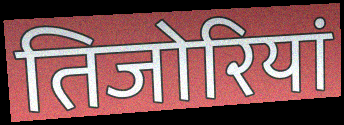
तिजोरियां